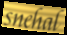
snehal